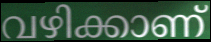
വഴിക്കാണ്